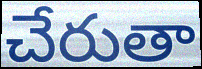
చేరుతా